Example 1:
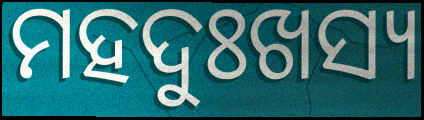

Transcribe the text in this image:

ମହଦୁଃଖସ୍ୟ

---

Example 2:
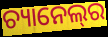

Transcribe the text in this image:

ଚ୍ୟାନେଲ୍‌ର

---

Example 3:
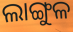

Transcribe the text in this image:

ଲାଙ୍ଗୁଳ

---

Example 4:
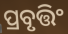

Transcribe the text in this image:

ପ୍ରବୃତ୍ତିଂ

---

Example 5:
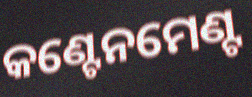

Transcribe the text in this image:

କଣ୍ଟେନମେଣ୍ଟ